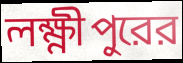
লক্ষ্ণীপুরের